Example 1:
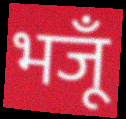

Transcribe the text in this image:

भजूँ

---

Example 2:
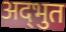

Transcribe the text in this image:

अद्‌भुत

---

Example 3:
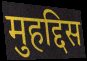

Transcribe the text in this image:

मुहद्दिस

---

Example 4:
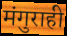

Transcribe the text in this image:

मंगुराही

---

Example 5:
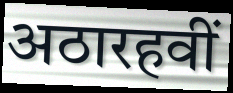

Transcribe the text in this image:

अठारहवीं